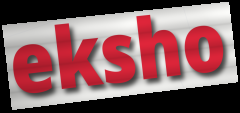
eksho